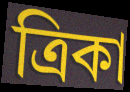
ত্রিকা